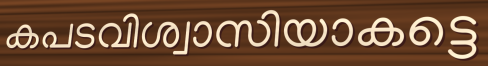
കപടവിശ്വാസിയാകട്ടെ